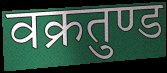
वक्रतुण्ड